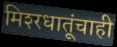
मिश्रधातूंचाही